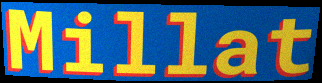
Millat